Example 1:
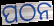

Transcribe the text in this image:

ପଠନ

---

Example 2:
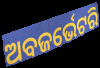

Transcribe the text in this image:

ଅବଜର୍ଭେଟରି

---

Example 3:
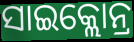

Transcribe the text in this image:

ସାଇକ୍ଲୋନ୍ର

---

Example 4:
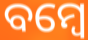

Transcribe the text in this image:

ବମ୍ୱେ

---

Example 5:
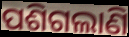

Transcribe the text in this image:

ପଶିଗଲାଣି